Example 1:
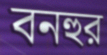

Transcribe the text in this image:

বনহুর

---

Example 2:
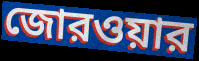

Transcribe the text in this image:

জোরওয়ার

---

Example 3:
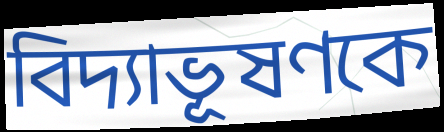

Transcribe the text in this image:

বিদ্যাভূষণকে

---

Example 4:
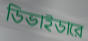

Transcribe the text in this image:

ডিভাইডারে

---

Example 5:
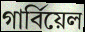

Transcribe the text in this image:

গার্বিয়েল